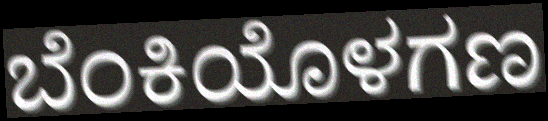
ಬೆಂಕಿಯೊಳಗಣ